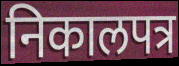
निकालपत्र